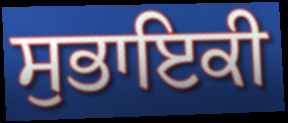
ਸੁਭਾਇਕੀ